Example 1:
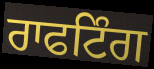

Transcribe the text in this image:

ਰਾਫਟਿੰਗ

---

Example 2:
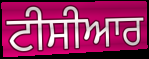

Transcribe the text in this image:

ਟੀਸੀਆਰ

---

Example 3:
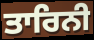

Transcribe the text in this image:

ਤਾਰਿਨੀ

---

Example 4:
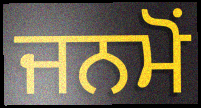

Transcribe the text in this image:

ਜਨਮੋਂ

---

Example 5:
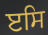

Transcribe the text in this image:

ੲਸਿ